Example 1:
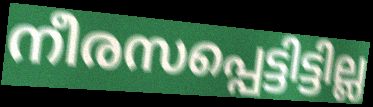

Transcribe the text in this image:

നീരസപ്പെട്ടിട്ടില്ല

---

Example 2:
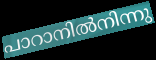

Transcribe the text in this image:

പാറാനിൽനിന്നു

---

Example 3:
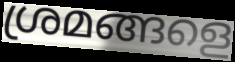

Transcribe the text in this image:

ശ്രമങ്ങളെ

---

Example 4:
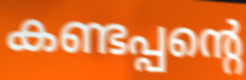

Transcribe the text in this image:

കണ്ടപ്പന്റെ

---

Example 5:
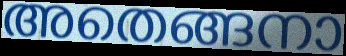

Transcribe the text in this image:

അതെങ്ങനാ